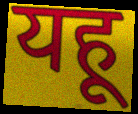
यहू